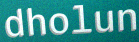
dholun